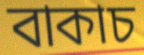
বাকাচ